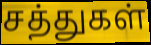
சத்துகள்